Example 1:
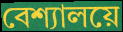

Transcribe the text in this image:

বেশ্যালয়ে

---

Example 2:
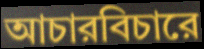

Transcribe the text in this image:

আচারবিচারে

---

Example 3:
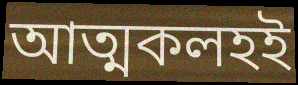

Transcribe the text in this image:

আত্মকলহই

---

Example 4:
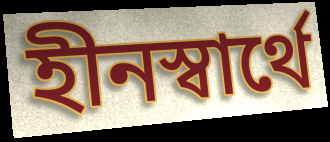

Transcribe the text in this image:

হীনস্বার্থে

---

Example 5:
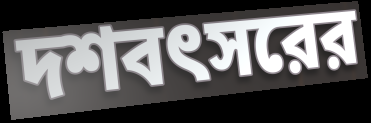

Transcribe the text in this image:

দশবৎসরের